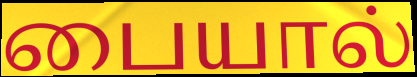
பையால்